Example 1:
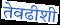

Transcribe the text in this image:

तेवढीशी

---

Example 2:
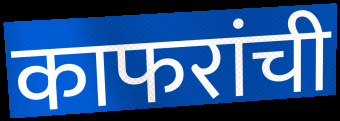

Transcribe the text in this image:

काफरांची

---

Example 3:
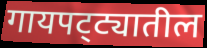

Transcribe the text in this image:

गायपट्ट्यातील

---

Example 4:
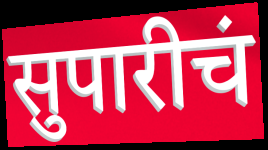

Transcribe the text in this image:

सुपारीचं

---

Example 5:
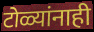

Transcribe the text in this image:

टोळ्यांनाही